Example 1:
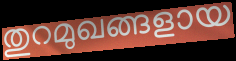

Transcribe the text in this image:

തുറമുഖങ്ങളായ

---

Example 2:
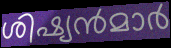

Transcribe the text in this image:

ശിഷ്യൻമാർ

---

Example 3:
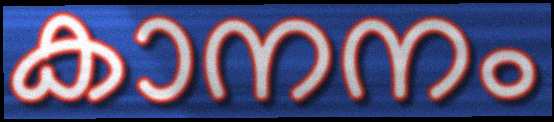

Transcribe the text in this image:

കാനനം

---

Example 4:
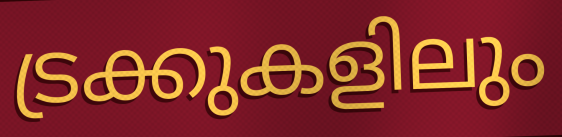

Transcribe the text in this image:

ട്രക്കുകളിലും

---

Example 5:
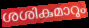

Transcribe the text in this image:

ശശികുമാറും